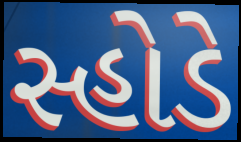
સ્હોડે